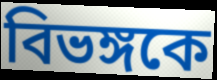
বিভঙ্গকে